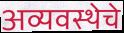
अव्यवस्थेचे